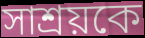
সাশ্রয়কে